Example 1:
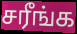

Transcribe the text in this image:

சரீங்க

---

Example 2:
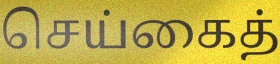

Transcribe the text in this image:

செய்கைத்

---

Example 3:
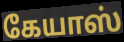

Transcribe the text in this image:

கேயாஸ்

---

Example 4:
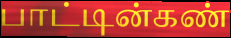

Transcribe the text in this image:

பாட்டின்கண்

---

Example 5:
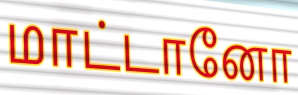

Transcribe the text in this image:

மாட்டானோ